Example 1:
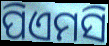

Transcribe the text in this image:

ପିଏମସି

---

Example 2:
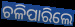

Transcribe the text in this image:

ଚଳିପାରିଲେ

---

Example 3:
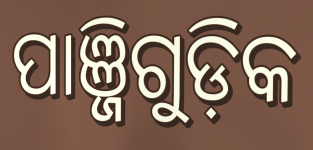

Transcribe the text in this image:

ପାଞ୍ଜିଗୁଡ଼ିକ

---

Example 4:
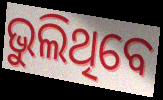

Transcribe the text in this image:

ଭୁଲିଥିବେ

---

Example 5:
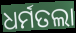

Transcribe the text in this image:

ଧର୍ମତଲା